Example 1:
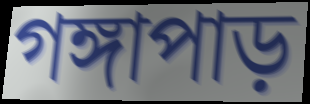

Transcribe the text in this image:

গঙ্গাপাড়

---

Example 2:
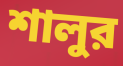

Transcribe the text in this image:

শালুর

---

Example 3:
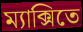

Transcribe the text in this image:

ম্যাক্সিতে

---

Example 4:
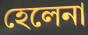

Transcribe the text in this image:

হেলেনা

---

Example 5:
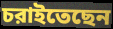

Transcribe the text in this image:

চরাইতেছেন